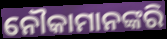
ନୌକାମାନଙ୍କରି